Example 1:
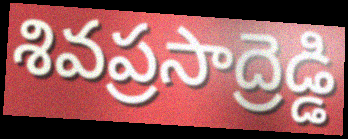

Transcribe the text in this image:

శివప్రసాద్రెడ్డి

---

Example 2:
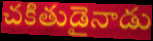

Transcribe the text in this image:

చకితుడైనాడు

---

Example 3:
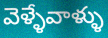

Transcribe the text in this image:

వెళ్ళేవాళ్ళు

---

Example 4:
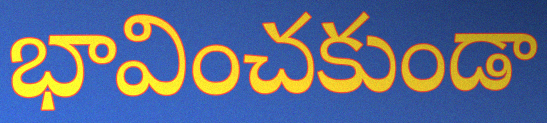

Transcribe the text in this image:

భావించకుండా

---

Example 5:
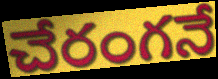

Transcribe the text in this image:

చేరంగనే